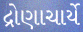
દ્રોણાચાર્યે